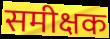
समीक्षक